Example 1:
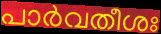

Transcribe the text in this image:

പാർവതീശഃ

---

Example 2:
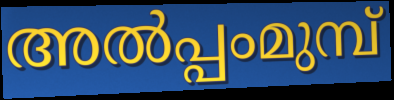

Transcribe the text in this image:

അൽപ്പംമുമ്പ്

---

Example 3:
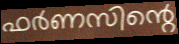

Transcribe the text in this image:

ഫർണസിന്റെ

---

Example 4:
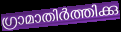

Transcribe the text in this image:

ഗ്രാമാതിർത്തിക്കു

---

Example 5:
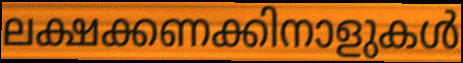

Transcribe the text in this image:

ലക്ഷക്കണക്കിനാളുകൾ